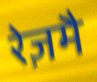
रेज़मै